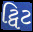
ટ્વિટ